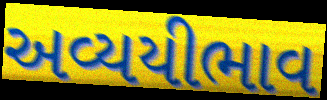
અવ્યયીભાવ